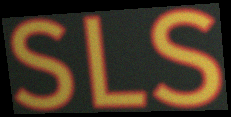
SLS